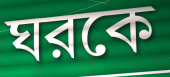
ঘরকে